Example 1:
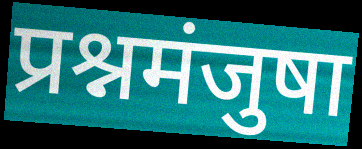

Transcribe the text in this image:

प्रश्नमंजुषा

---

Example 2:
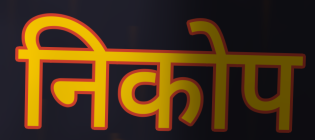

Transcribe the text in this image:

निकोप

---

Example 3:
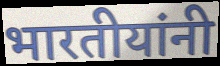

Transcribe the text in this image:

भारतीयांनी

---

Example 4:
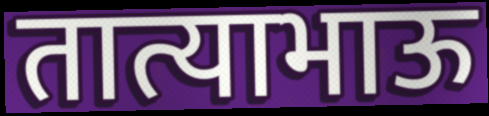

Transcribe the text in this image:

तात्याभाऊ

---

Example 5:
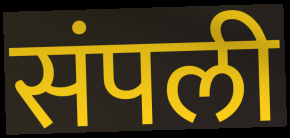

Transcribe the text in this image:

संपली